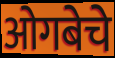
ओगबेचे